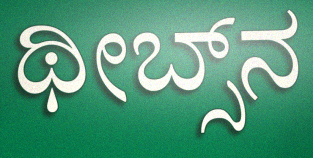
ಥೀಬ್ಸ್‌ನ